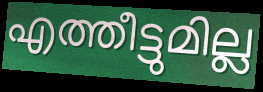
എത്തീട്ടുമില്ല